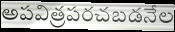
అపవిత్రపరచబడనేల